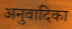
अनुवादिका